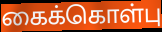
கைக்கொள்பு